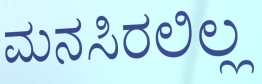
ಮನಸಿರಲಿಲ್ಲ